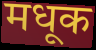
मधूक